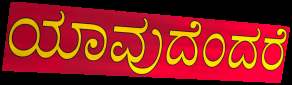
ಯಾವುದೆಂದರೆ